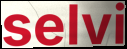
selvi